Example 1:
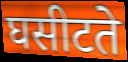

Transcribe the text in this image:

घसीटते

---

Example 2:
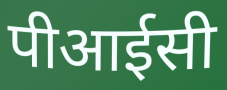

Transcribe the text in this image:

पीआईसी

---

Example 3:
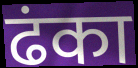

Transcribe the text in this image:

ढंका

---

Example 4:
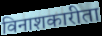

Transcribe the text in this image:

विनाशकारीता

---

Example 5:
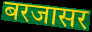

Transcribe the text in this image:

बरजासर